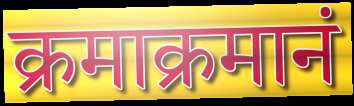
क्रमाक्रमानं